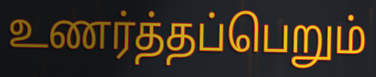
உணர்த்தப்பெறும்